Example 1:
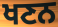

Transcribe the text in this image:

ਖਣਨ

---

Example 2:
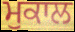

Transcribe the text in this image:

ਮੁਕਾਲ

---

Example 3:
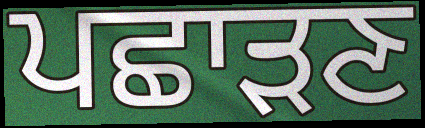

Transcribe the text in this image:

ਪਛਾੜਣ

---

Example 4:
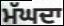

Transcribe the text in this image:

ਮੱਘਦਾ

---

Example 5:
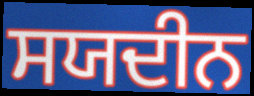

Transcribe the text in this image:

ਸਯਦੀਨ